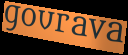
gourava